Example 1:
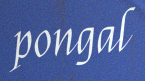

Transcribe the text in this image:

pongal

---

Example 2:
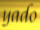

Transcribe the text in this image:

yado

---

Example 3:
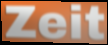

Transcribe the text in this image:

Zeit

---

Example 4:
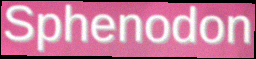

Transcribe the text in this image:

Sphenodon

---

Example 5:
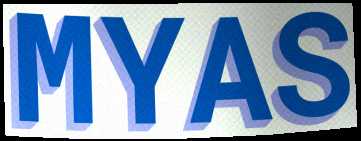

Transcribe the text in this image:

MYAS